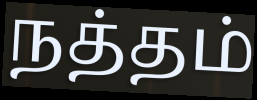
நத்தம்